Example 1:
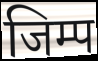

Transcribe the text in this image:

जिम्प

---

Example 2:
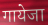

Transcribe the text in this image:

गायेजा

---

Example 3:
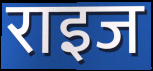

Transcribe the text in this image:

राइज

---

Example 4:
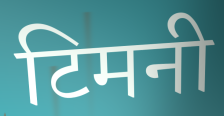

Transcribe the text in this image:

टिमनी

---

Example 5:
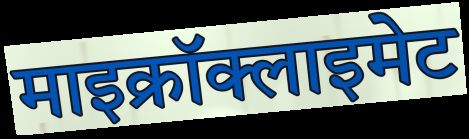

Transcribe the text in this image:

माइक्रॉक्लाइमेट